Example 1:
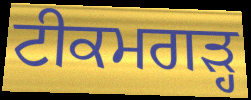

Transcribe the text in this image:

ਟੀਕਮਗੜ੍ਹ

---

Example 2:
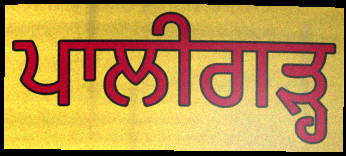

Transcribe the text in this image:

ਪਾਲੀਗੜ੍ਹ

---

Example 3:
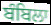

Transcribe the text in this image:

ਬੰਬਿਲਾ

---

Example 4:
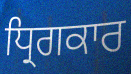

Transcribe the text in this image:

ਧ੍ਰਿਗਕਾਰ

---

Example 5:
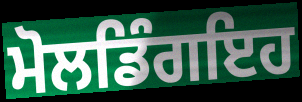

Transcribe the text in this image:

ਮੋਲਡਿੰਗਇਹ